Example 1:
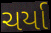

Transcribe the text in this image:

ચર્યા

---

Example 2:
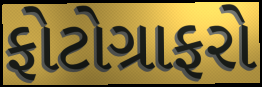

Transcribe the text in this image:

ફોટોગ્રાફરો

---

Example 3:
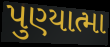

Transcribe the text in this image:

પુણ્યાત્મા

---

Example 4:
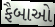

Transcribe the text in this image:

ફૈબાઓ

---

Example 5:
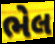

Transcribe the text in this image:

ભેલ